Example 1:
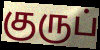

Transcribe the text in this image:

குருப்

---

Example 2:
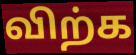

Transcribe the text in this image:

விற்க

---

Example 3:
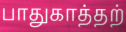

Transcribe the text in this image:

பாதுகாத்தற்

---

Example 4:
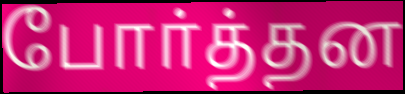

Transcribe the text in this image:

போர்த்தன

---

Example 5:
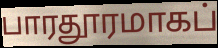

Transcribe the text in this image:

பாரதூரமாகப்